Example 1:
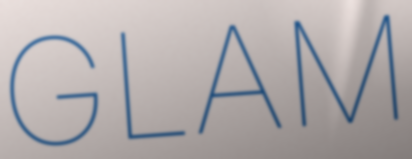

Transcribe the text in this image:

GLAM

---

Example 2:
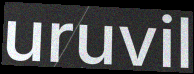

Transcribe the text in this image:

uruvil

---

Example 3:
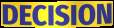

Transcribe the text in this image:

DECISION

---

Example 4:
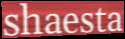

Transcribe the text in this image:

shaesta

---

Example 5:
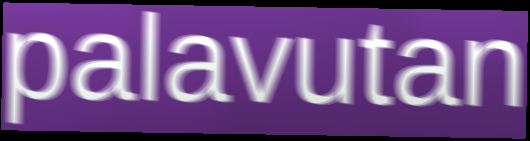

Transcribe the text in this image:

palavutan